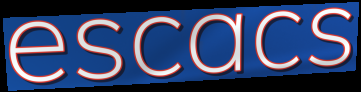
escacs